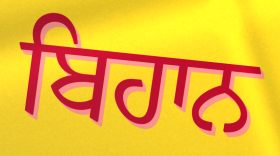
ਬਿਹਾਨ